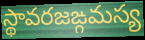
స్థావరజఙ్గమస్య